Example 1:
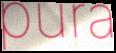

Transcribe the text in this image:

pura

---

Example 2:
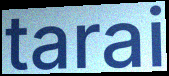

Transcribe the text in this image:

tarai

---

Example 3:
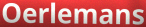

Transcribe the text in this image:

Oerlemans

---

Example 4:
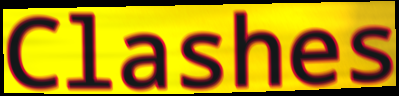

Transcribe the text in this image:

Clashes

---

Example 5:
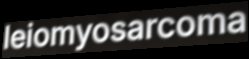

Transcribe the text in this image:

leiomyosarcoma